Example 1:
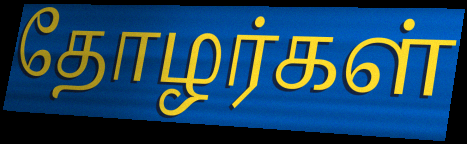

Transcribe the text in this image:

தோழர்கள்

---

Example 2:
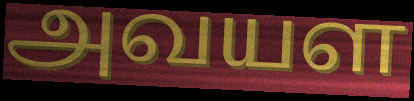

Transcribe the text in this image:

அவயள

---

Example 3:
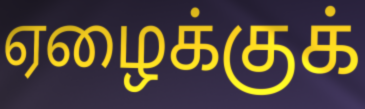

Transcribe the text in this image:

ஏழைக்குக்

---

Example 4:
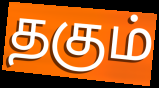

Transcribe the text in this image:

தகும்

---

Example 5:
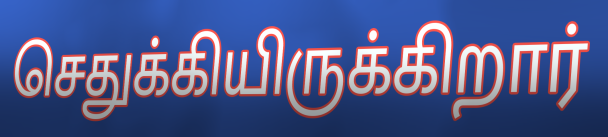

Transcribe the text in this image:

செதுக்கியிருக்கிறார்